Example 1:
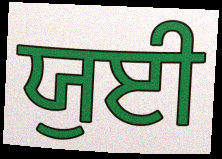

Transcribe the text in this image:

ਯੁਈ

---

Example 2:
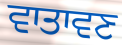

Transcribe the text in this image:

ਵਾਤਾਵਣ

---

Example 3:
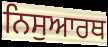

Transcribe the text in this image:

ਨਿਸੁਆਰਥ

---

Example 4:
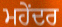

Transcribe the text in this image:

ਮਹੇਂਦਰ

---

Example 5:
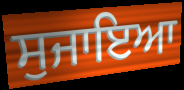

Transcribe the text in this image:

ਸੁਜਾਇਆ